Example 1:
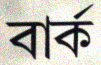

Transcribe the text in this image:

বার্ক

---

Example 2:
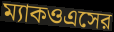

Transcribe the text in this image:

ম্যাকওএসের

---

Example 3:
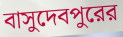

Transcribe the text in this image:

বাসুদেবপুরের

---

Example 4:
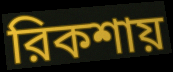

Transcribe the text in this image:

রিকশায়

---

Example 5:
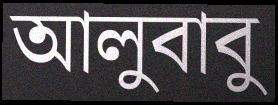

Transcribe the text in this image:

আলুবাবু